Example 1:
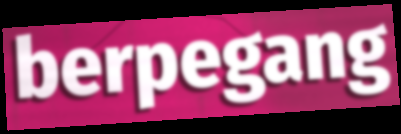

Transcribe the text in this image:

berpegang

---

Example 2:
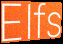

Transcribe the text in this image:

Elfs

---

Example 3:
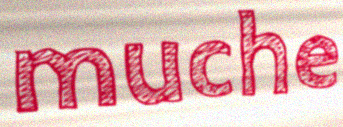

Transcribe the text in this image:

muche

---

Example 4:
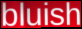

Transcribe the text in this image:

bluish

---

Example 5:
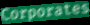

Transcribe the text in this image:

Corporates